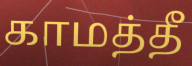
காமத்தீ